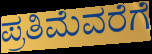
ಪ್ರತಿಮೆವರೆಗೆ